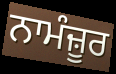
ਨਾਮੰਜ਼ੂਰ